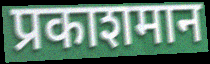
प्रकाशमान